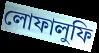
লোফালুফি